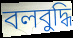
বলবুদ্ধি